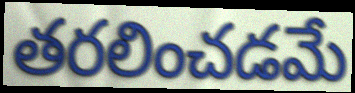
తరలించడమే